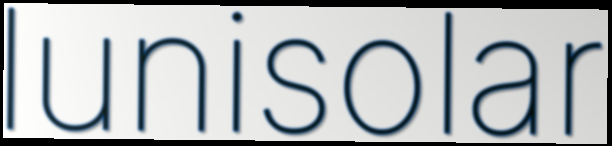
lunisolar